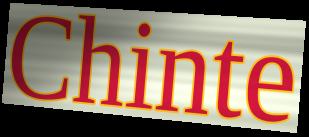
Chinte